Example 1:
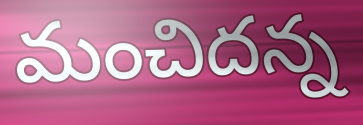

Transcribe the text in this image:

మంచిదన్న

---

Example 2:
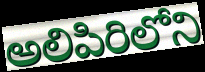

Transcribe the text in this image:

అలిపిరిలోని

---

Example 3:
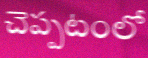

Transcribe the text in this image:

చెప్పటంలో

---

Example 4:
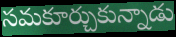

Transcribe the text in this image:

సమకూర్చుకున్నాడు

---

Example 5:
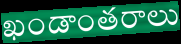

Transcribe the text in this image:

ఖండాంతరాలు